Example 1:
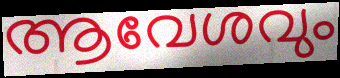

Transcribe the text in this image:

ആവേശവും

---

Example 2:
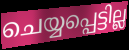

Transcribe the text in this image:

ചെയ്യപ്പെട്ടില്ല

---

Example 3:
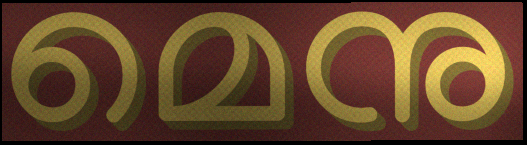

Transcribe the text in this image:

മെനു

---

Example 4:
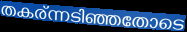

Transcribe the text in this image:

തകര്ന്നടിഞ്ഞതോടെ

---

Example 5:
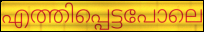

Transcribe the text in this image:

എത്തിപ്പെട്ടപോലെ